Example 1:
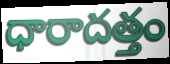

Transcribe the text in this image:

ధారాదత్తం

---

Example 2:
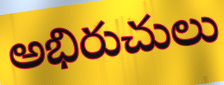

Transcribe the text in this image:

అభిరుచులు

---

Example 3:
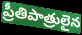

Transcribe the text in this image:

ప్రీతిపాత్రులైన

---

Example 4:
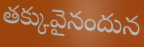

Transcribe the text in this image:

తక్కువైనందున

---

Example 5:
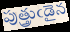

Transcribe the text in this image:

పుత్త్రుఁడైన